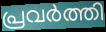
പ്രവർത്തി